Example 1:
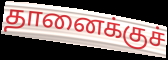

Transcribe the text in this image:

தானைக்குச்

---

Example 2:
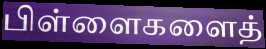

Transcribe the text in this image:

பிள்ளைகளைத்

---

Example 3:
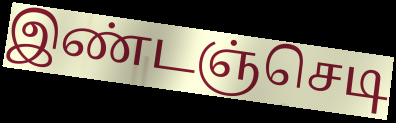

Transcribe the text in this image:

இண்டஞ்செடி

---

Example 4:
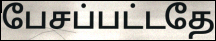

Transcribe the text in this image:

பேசப்பட்டதே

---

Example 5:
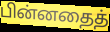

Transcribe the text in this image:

பின்னதைத்